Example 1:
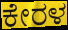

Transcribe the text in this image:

ಕೇರಳ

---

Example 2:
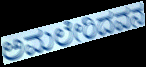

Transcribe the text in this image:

ಅಮಲೇರಿದವನ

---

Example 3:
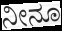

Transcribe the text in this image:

ನೀನೂ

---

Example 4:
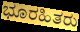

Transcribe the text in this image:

ಭೂರಹಿತರು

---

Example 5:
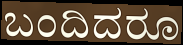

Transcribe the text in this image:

ಬಂದಿದರೂ